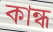
কান্ধ